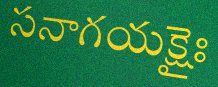
సనాగయక్షైః